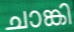
ചാങ്കി